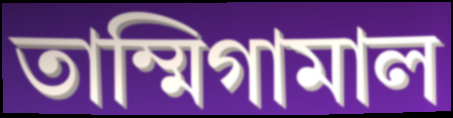
তাম্মিগামাল